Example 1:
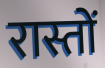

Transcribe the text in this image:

रास्तों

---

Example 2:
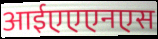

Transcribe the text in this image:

आईएएएनएस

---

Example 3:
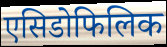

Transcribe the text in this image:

एसिडोफिलिक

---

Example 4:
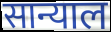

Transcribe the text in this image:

सान्याल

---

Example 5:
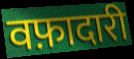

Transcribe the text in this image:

वफ़ादारी